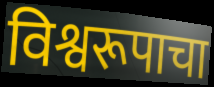
विश्वरूपाचा